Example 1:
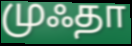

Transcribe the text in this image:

முஃதா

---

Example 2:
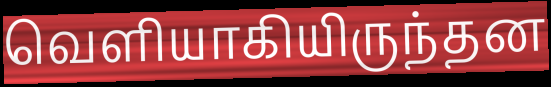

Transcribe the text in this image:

வெளியாகியிருந்தன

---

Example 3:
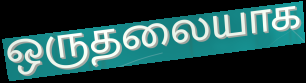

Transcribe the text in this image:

ஒருதலையாக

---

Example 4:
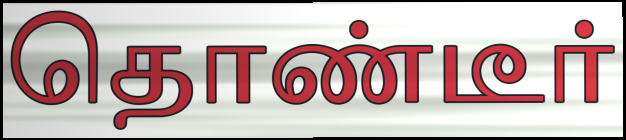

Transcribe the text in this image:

தொண்டீர்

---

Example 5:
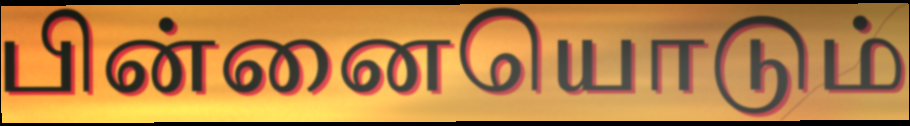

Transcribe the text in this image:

பின்னையொடும்